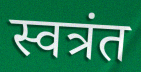
स्वत्रंत